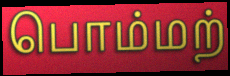
பொம்மற்